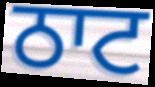
ਠਾਟ